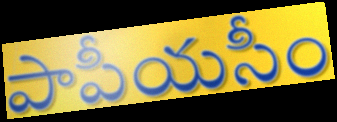
పాపీయసీం